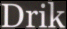
Drik